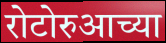
रोटोरुआच्या